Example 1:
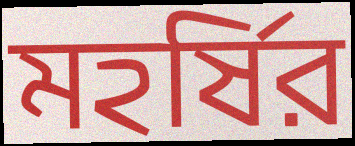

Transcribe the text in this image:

মহর্ষির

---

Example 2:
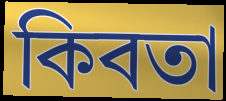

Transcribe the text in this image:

কিবতা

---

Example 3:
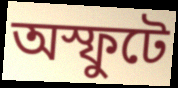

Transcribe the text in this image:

অস্ফুটে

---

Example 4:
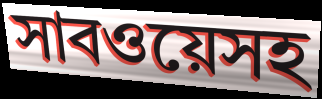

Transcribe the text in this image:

সাবওয়েসহ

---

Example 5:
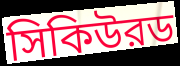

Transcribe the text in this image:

সিকিউরড